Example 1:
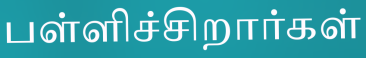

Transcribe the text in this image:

பள்ளிச்சிறார்கள்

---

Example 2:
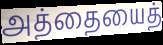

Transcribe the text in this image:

அத்தையைத்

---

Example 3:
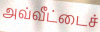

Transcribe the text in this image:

அவ்வீட்டைச்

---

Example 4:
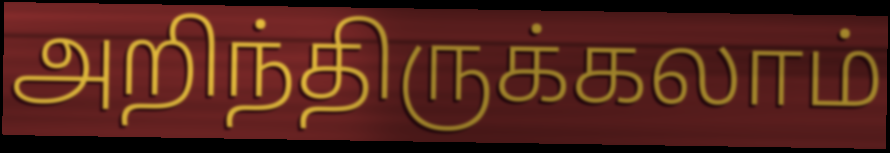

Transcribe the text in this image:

அறிந்திருக்கலாம்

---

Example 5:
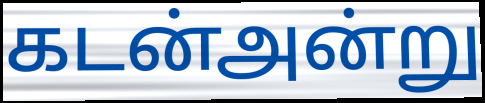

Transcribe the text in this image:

கடன்அன்று